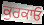
ਕੁਰਕਾਓ